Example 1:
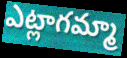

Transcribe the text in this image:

ఎట్లాగమ్మా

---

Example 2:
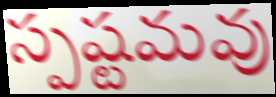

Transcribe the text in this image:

స్పష్టమవు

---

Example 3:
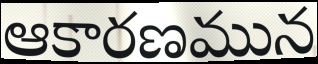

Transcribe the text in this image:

ఆకారణమున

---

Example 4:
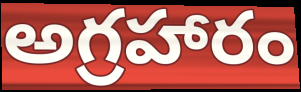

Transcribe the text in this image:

అగ్రహారం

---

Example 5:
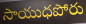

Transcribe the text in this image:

సాయుధపోరు